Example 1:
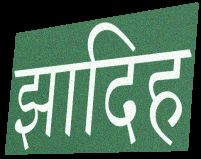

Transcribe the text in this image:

झादिह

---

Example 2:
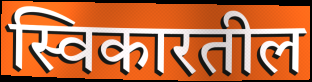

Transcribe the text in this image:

स्विकारतील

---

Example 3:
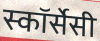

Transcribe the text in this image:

स्कॉर्सेसी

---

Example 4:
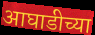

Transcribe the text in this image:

आघाडीच्या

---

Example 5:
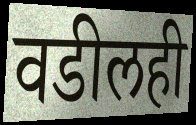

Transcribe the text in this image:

वडीलही